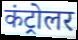
कंट्रोलर